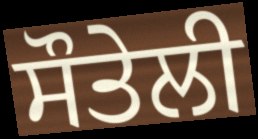
ਸੌਤੇਲੀ